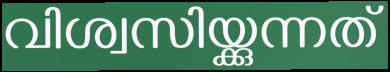
വിശ്വസിയ്ക്കുന്നത്